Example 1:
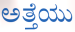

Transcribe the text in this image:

ಅತ್ತೆಯು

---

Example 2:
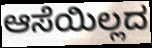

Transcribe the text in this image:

ಆಸೆಯಿಲ್ಲದ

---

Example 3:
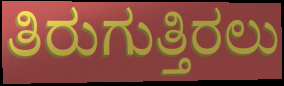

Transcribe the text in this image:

ತಿರುಗುತ್ತಿರಲು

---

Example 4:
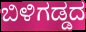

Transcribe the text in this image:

ಬಿಳಿಗಡ್ಡದ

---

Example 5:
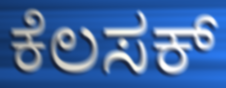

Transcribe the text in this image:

ಕೆಲಸಕ್